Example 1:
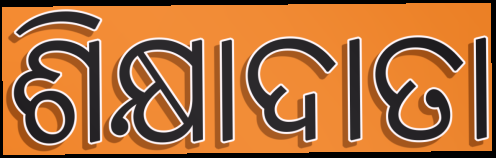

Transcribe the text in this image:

ଶିକ୍ଷାଦାତା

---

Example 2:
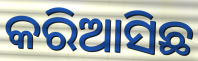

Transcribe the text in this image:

କରିଆସିଛ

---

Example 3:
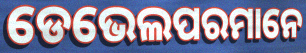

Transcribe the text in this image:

ଡେଭେଲପରମାନେ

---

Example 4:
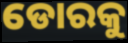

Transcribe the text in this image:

ଡୋରକୁ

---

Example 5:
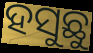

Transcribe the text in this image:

ହସୁଛୁ